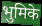
भुमिके